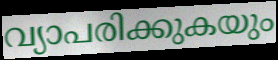
വ്യാപരിക്കുകയും